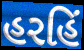
હરહિં